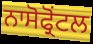
ਨਾਸੋਫ੍ਰੋਂਟਲ